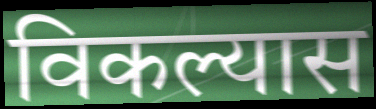
विकल्यास